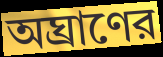
অঘ্রাণের